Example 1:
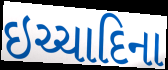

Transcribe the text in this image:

ઇચ્ચાદિના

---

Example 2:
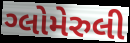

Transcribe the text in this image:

ગ્લોમેરુલી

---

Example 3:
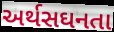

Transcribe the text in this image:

અર્થસઘનતા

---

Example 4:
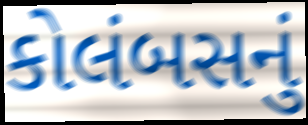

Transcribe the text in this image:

કોલંબસનું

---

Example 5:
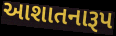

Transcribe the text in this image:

આશાતનારૂપ